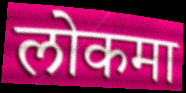
लोकमा